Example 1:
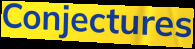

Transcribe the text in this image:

Conjectures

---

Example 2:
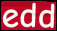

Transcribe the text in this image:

edd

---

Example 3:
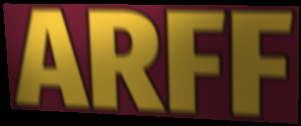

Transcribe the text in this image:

ARFF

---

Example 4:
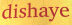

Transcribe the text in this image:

dishaye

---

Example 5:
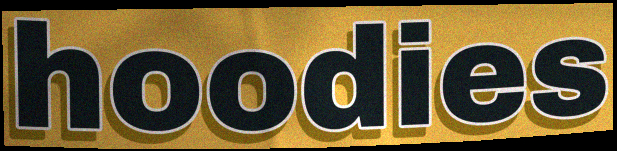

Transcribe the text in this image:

hoodies